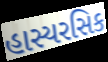
હાસ્યરસિક